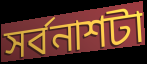
সর্বনাশটা